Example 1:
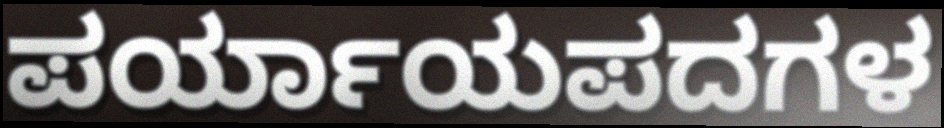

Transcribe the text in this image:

ಪರ್ಯಾಯಪದಗಳ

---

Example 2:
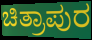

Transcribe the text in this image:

ಚಿತ್ರಾಪುರ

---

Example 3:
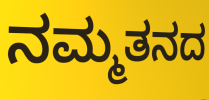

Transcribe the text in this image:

ನಮ್ಮತನದ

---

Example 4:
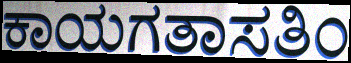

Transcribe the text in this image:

ಕಾಯಗತಾಸತಿಂ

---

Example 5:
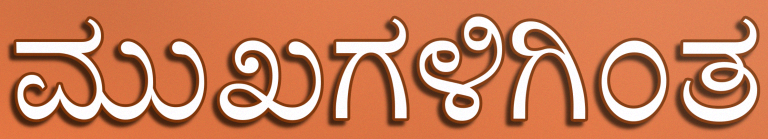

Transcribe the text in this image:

ಮುಖಗಳಿಗಿಂತ